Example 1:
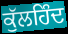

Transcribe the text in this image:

ਕੁੱਲਹਿੰਦ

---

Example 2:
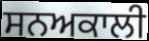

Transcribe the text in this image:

ਸਨਅਕਾਲੀ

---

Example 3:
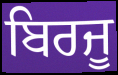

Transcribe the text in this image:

ਬਿਰਜੂ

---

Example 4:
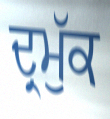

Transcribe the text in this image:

ਦ੍ਰਮੁੱਕ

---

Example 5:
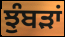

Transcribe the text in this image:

ਝੁੰਬੜਾਂ